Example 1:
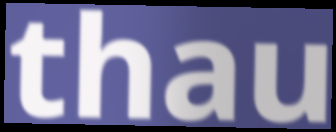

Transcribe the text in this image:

thau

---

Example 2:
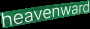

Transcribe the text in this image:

heavenward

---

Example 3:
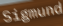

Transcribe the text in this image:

Sigmund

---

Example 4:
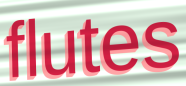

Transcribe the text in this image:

flutes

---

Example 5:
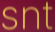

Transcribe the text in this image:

snt